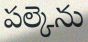
పల్కెను